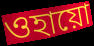
ওহায়ো